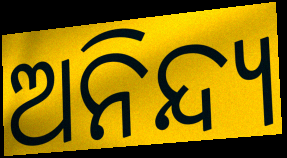
ଅନିନ୍ଦ୍ୟ